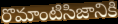
రొమాంటిసిజానికి